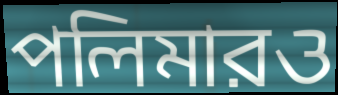
পলিমারও